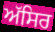
ਅੱਸਿਰ